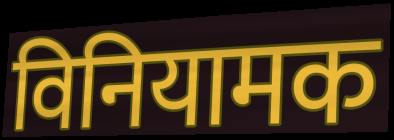
विनियामक